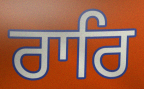
ਰਾਰਿ